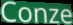
Conze